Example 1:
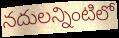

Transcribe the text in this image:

నదులన్నింటిలో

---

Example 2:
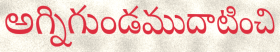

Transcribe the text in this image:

అగ్నిగుండముదాటించి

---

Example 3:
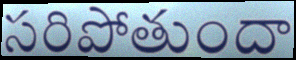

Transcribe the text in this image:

సరిపోతుందా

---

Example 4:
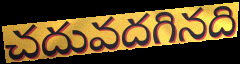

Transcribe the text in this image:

చదువదగినది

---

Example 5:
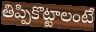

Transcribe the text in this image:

తిప్పికొట్టాలంటే